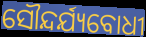
ସୌନ୍ଦର୍ଯ୍ୟବୋଧୀ